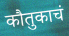
कौतुकाचं